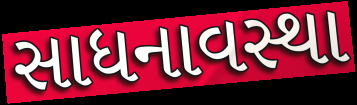
સાધનાવસ્થા